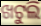
ଖଟୁଲି